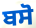
ਬਸੋ